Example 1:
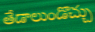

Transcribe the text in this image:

తేడాలుండొచ్చు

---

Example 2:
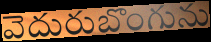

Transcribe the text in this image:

వెదురుబొంగును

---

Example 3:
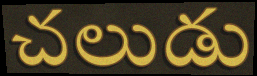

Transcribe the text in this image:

చలుడు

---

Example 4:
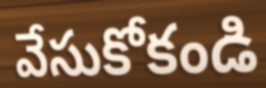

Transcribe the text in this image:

వేసుకోకండి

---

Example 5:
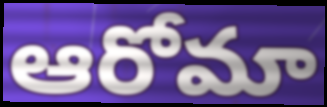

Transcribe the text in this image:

ఆరోమా